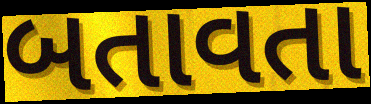
બતાવતા